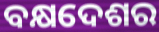
ବକ୍ଷଦେଶର